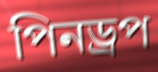
পিনড্রপ